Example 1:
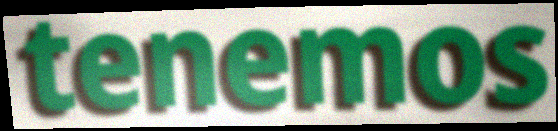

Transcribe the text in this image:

tenemos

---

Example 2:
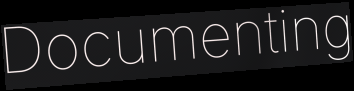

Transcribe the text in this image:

Documenting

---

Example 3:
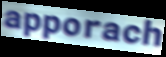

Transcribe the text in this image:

apporach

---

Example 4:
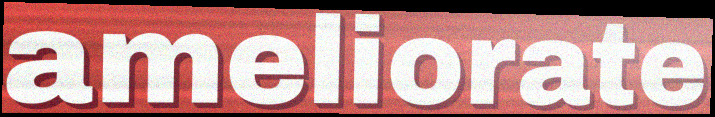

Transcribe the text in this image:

ameliorate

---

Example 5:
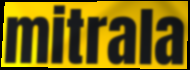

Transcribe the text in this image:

mitrala